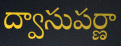
ద్వాసుపర్ణా